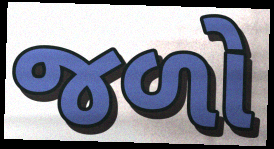
જળો